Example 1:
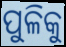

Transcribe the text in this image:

ପୁଳିକୁ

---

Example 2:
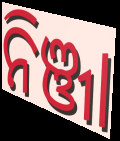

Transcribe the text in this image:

ନିଞ୍ଜା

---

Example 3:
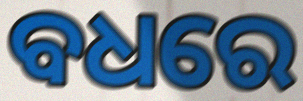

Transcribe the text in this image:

ବଧରେ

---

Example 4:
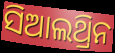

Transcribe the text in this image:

ସିଆଲଥ୍ରିନ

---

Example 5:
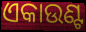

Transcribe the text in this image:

ଏକାଉଣ୍ଟ